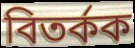
বিতৰ্কক